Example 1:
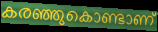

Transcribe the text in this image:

കരഞ്ഞുകൊണ്ടാണ്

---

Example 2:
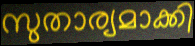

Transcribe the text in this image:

സുതാര്യമാക്കി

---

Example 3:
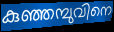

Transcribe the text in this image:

കുഞ്ഞമ്പുവിനെ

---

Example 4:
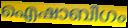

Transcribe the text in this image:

ഐഷാബീഗം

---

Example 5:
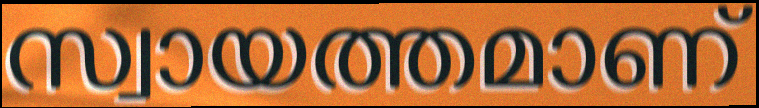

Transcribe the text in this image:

സ്വായത്തമാണ്